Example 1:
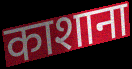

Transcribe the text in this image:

काशाना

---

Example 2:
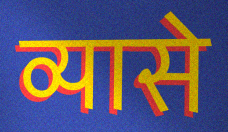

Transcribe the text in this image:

व्यासे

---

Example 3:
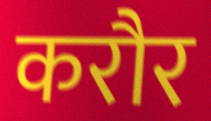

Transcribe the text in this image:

करौर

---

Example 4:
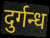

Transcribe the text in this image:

दुर्गन्ध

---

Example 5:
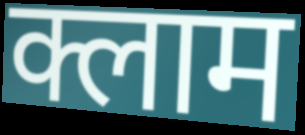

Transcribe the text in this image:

क्लाम